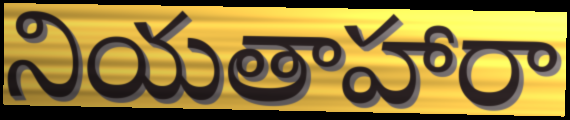
నియతాహారా